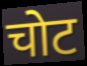
चोट